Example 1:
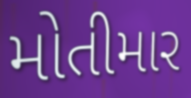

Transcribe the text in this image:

મોતીમાર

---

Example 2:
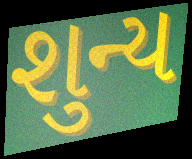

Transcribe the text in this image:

શુન્ય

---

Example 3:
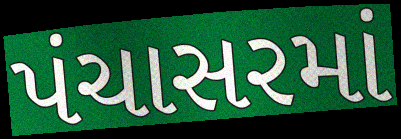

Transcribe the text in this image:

પંચાસરમાં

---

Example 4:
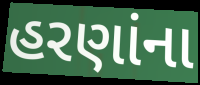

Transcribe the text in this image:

હરણાંના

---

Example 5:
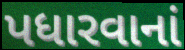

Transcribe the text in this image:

પધારવાનાં